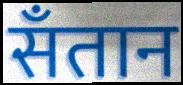
सँतान